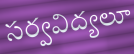
సర్వవిద్యలూ